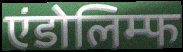
एंडोलिम्फ